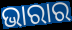
ଭାରାର